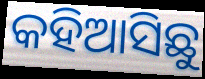
କହିଆସିଛୁ